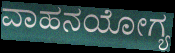
ವಾಹನಯೋಗ್ಯ